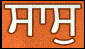
ਸਾਸੁ